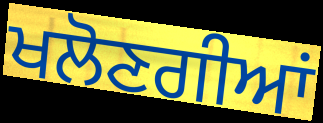
ਖਲੋਣਗੀਆਂ